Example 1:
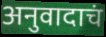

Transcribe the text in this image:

अनुवादाचं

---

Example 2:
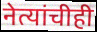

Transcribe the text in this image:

नेत्यांचीही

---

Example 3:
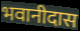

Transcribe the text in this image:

भवानीदास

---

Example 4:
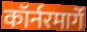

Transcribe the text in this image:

कॉर्नरमार्गे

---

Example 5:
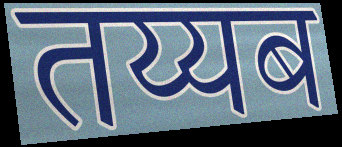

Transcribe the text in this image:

तय्यब